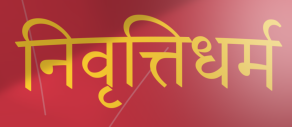
निवृत्तिधर्म